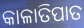
କାଳାତିପାତ